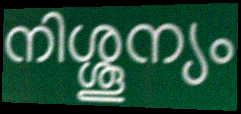
നിശ്ശൂന്യം